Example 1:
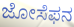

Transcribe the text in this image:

ಜೋಸೆಫನ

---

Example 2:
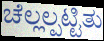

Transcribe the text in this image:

ಚೆಲ್ಲಲ್ಪಟ್ಟಿತು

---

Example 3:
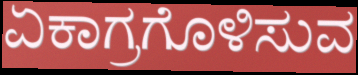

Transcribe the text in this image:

ಏಕಾಗ್ರಗೊಳಿಸುವ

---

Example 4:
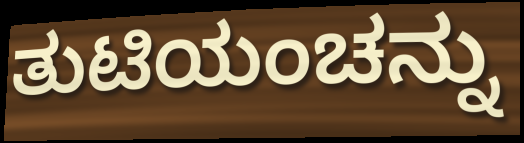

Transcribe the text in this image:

ತುಟಿಯಂಚನ್ನು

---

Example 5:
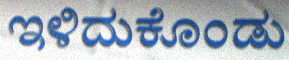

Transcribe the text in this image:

ಇಳಿದುಕೊಂಡು